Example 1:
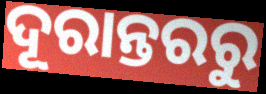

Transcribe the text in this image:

ଦୂରାନ୍ତରରୁ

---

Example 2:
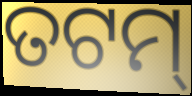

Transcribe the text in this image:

ତଟମ୍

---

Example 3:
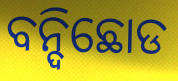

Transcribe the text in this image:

ବନ୍ଦିଛୋଡ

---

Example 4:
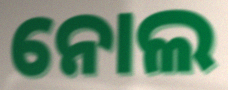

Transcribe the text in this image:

ନୋଲ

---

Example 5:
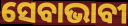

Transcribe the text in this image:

ସେବାଭାବୀ